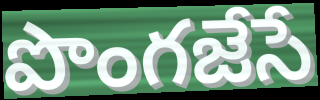
పొంగజేసే